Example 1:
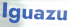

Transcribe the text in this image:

Iguazu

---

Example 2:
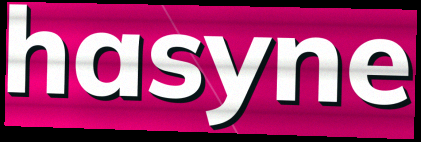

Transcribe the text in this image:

hasyne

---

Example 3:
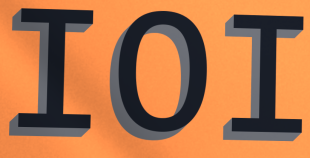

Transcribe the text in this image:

IOI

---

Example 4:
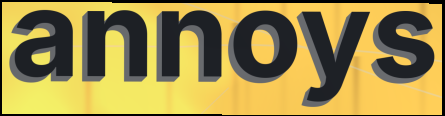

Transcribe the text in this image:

annoys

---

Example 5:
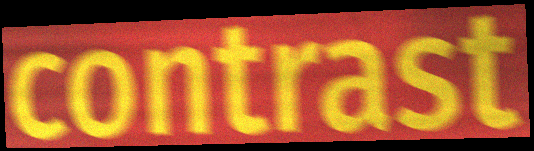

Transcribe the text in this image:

contrast